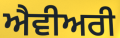
ਐਵੀਅਰੀ